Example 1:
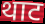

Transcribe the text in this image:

थाट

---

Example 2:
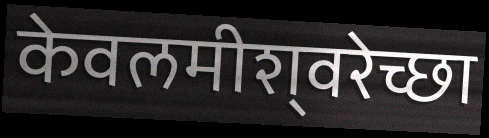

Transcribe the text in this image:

केवलमीश्वरेच्छा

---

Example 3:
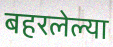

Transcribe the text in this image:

बहरलेल्या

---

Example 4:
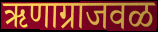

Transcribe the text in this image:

ऋणाग्राजवळ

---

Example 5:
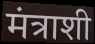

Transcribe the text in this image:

मंत्राशी